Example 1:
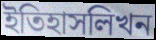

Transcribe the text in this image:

ইতিহাসলিখন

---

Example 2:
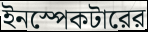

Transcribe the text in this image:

ইনস্পেকটারের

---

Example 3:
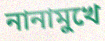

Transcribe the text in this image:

নানামুখে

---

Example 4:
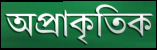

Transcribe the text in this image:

অপ্রাকৃতিক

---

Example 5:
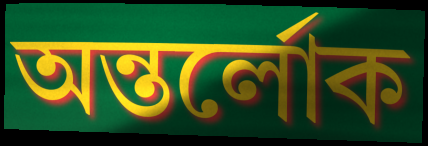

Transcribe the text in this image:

অন্তর্লোক